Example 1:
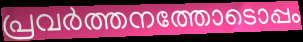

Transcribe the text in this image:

പ്രവർത്തനത്തോടൊപ്പം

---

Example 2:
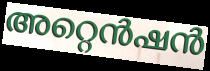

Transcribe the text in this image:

അറ്റെൻഷൻ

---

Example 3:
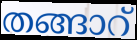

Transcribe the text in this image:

തങ്ങാറ്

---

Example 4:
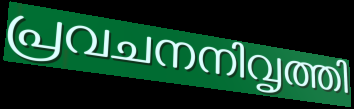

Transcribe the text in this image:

പ്രവചനനിവൃത്തി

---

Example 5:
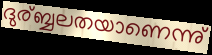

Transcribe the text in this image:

ദുര്ബ്ബലതയാണെന്നു്